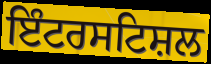
ਇੰਟਰਸਟਿਸ਼ਲ